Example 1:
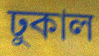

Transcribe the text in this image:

ঢুকাল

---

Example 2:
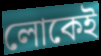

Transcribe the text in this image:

লোকেই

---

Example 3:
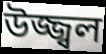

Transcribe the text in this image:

উজ্জ্বল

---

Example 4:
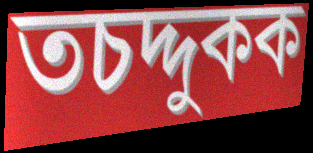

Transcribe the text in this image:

তচদ্দুকক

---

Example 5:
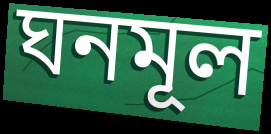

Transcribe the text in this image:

ঘনমূল